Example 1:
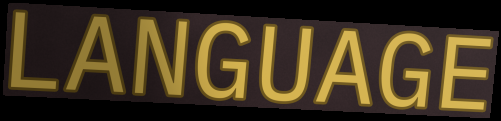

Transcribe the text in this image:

LANGUAGE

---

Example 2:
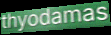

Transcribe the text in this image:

thyodamas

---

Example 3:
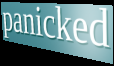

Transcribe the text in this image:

panicked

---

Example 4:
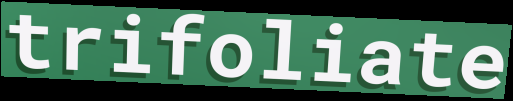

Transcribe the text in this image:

trifoliate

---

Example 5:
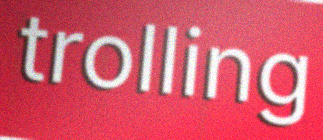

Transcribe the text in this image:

trolling